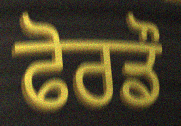
ਫੋਰਡੌ